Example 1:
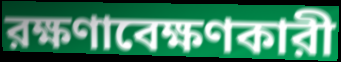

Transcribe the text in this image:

রক্ষণাবেক্ষণকারী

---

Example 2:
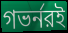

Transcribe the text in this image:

গভর্নরই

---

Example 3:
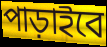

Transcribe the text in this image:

পাড়াইবে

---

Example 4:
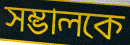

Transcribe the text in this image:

সম্ভালকে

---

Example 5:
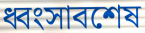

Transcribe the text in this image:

ধ্বংসাবশেষ